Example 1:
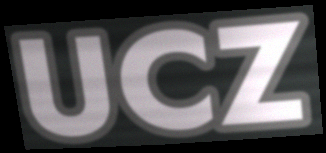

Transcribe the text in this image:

UCZ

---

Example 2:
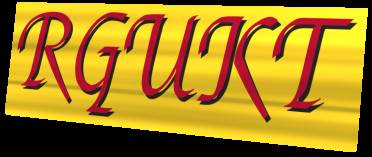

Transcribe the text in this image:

RGUKT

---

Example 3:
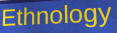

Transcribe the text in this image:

Ethnology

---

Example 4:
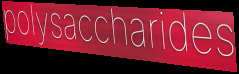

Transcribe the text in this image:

polysaccharides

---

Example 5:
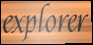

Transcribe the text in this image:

explorer